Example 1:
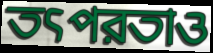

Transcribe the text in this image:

তৎপরতাও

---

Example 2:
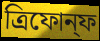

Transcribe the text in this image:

ত্রিফোন্ফ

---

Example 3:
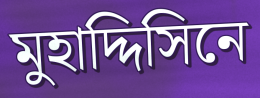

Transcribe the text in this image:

মুহাদ্দিসিনে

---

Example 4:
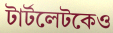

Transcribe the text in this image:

টার্টলেটকেও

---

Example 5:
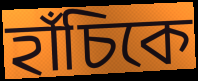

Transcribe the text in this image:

হাঁচিকে